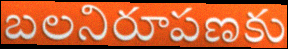
బలనిరూపణకు